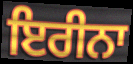
ਇਰੀਨਾ